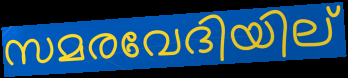
സമരവേദിയില്